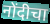
नोंदीचा